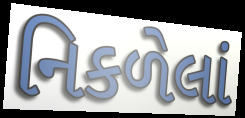
નિકળેલાં